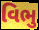
વિભુ